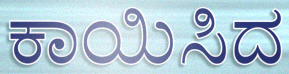
ಕಾಯಿಸಿದ